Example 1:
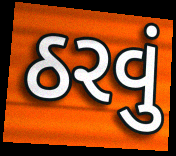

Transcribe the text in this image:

ઠરવું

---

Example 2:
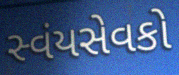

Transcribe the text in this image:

સ્વંયસેવકો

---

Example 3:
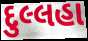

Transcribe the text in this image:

દુલ્લહા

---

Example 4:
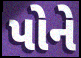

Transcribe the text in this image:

પોને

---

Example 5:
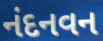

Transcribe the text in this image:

નંદનવન